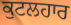
ਕੁਟਲਹਾਰ